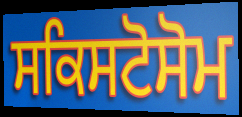
ਸਕਿਸਟੋਸੋਮ